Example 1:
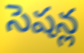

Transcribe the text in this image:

సెషన్ల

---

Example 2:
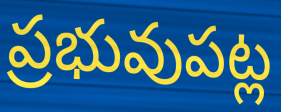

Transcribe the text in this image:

ప్రభువుపట్ల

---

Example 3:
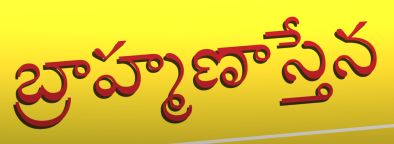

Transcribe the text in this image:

బ్రాహ్మణాస్తేన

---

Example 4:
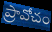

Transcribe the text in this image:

ప్రావోచం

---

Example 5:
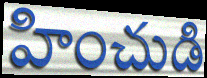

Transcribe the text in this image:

హించుడి